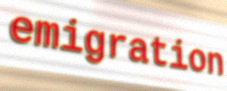
emigration